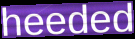
heeded